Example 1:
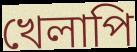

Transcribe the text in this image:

খেলাপি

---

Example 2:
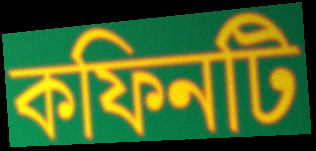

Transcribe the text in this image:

কফিনটি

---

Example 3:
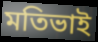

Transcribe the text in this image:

মতিভাই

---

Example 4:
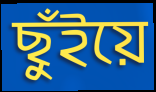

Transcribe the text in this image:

ছুঁইয়ে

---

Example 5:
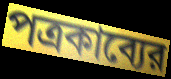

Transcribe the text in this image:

পত্রকাব্যের